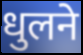
धुलने